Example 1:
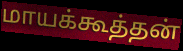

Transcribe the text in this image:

மாயக்கூத்தன்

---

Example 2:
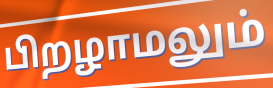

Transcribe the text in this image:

பிறழாமலும்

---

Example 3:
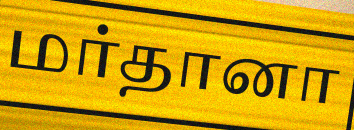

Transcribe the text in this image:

மர்தானா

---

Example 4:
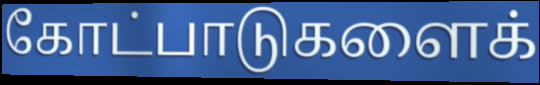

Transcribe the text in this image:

கோட்பாடுகளைக்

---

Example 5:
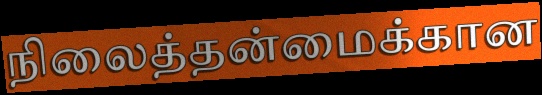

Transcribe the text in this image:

நிலைத்தன்மைக்கான